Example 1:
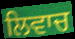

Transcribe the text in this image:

ਲਿਵਾਚ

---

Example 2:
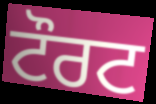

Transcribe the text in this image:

ਟੌਰਟ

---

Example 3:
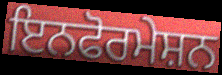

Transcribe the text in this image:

ਇਨਫੋਰਮੇਸ਼ਨ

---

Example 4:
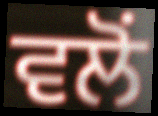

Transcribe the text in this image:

ਵਲੋੰ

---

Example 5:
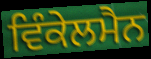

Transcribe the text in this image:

ਵਿੰਕੇਲਮੈਨ